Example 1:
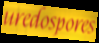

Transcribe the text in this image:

uredospores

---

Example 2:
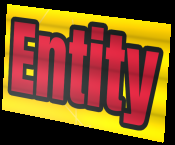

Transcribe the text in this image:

Entity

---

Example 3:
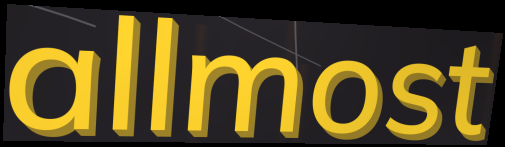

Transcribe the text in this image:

allmost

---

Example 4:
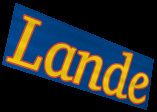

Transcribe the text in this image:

Lande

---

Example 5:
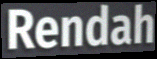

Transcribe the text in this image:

Rendah